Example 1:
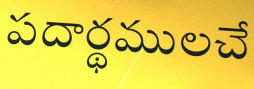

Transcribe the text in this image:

పదార్థములచే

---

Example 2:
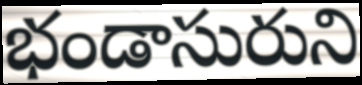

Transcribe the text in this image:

భండాసురుని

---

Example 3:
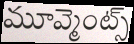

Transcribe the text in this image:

మూవ్మెంట్స్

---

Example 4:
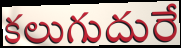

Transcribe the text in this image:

కలుగుదురే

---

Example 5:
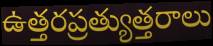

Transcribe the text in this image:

ఉత్తరప్రత్యుత్తరాలు